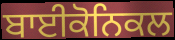
ਬਾਈਕੋਨਿਕਲ